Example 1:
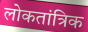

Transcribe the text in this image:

लोकतांत्रिक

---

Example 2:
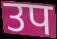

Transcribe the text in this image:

उप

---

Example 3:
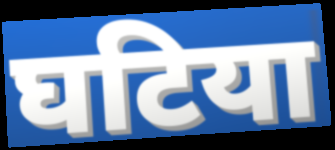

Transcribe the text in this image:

घटिया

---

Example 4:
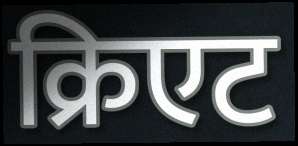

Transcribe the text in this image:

क्रिएट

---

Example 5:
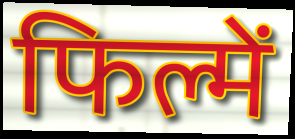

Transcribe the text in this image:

फिल्में